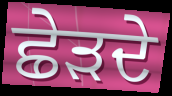
ਛੇੜਦੇ